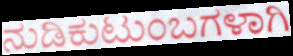
ನುಡಿಕುಟುಂಬಗಳಾಗಿ